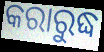
କରାରୁଦ୍ଧ